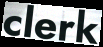
clerk